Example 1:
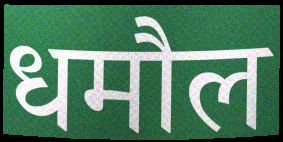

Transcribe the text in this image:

धमौल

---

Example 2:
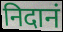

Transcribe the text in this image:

निदानं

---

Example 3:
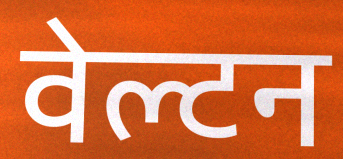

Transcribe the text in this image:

वेल्टन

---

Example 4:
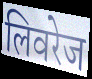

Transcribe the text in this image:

लिवरेज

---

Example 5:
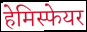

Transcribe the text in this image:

हेमिस्फेयर